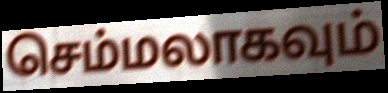
செம்மலாகவும்